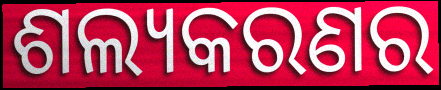
ଶଲ୍ୟକରଣର